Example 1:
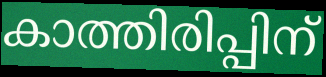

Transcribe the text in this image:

കാത്തിരിപ്പിന്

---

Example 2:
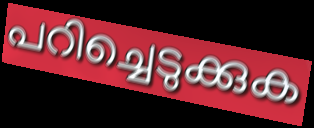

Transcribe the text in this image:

പറിച്ചെടുക്കുക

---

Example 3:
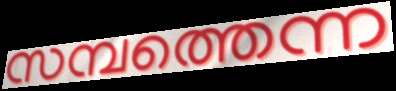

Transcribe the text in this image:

സമ്പത്തെന്ന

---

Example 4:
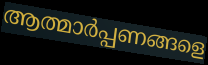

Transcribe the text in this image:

ആത്മാർപ്പണങ്ങളെ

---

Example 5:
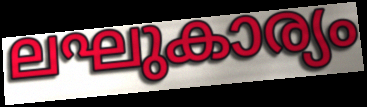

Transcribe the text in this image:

ലഘുകാര്യം